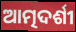
ଆତ୍ମଦର୍ଶୀ